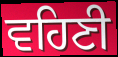
ਵਹਿਣੀ